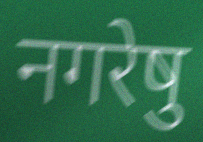
नगरेषु